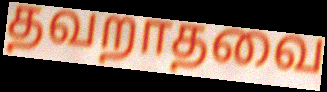
தவறாதவை